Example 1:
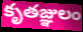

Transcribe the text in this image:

కృతజ్ఞులం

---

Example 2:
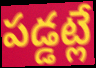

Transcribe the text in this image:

పడ్డట్లే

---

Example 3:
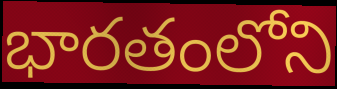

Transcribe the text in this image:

భారతంలోని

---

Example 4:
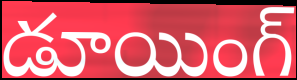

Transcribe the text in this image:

డూయింగ్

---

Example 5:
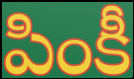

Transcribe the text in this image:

పింకీ